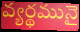
వ్యర్థమునై